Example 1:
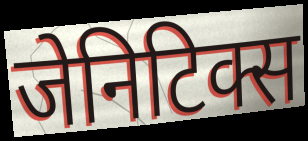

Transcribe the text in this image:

जेनिटिक्स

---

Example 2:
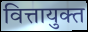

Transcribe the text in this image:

वित्तायुक्त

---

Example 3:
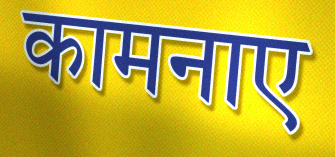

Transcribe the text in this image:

कामनाए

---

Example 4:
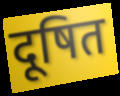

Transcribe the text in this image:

दूषित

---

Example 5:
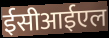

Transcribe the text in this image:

ईसीआईएल